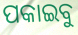
ପକାଇବୁ